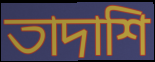
তাদাশি